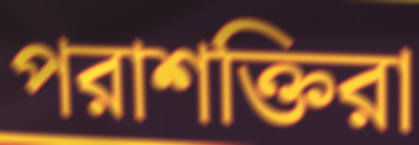
পরাশক্তিরা